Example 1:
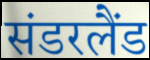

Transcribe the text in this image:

संडरलैंड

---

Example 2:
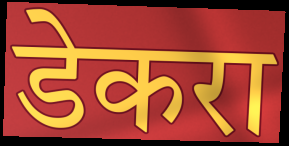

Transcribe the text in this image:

डेकरा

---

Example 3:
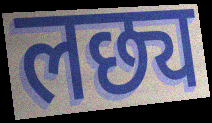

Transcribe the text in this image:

लछ्य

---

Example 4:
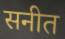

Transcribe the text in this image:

सनीत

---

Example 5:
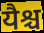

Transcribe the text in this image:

यैश्च